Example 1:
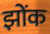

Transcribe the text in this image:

झोंक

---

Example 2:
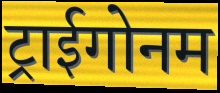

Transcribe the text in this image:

ट्राईगोनम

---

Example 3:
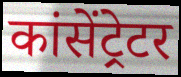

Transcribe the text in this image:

कांसेंट्रेटर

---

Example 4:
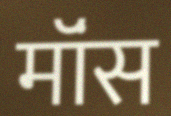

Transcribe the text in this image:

मॉंस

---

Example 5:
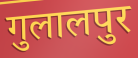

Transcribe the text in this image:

गुलालपुर